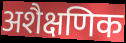
अशैक्षणिक